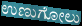
ಉಣುಗೋಲು